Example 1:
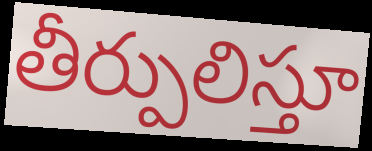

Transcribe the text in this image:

తీర్పులిస్తూ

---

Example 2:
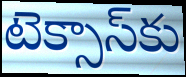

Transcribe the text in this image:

టెక్సాస్‌కు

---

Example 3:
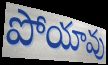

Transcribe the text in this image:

పోయావు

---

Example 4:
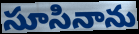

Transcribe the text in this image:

సూసినాను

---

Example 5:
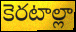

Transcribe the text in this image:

కెరటాల్లా